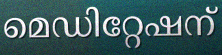
മെഡിറ്റേഷന്